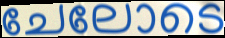
ചേലോടെ